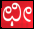
ಛೀ